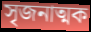
সৃজনাত্মক